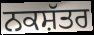
ਨਕਸ਼ੱਤਰ